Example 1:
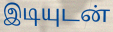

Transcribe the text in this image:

இடியுடன்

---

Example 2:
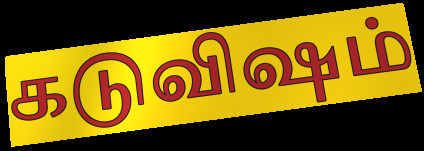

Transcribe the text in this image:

கடுவிஷம்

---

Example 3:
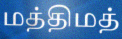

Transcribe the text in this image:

மத்திமத்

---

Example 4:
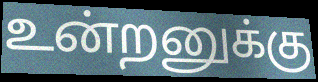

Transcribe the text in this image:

உன்றனுக்கு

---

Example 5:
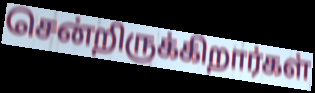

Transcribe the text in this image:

சென்றிருக்கிறார்கள்